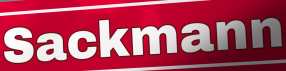
Sackmann